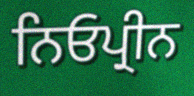
ਨਿਓਪ੍ਰੀਨ